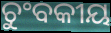
ଚୁଂବକୀୟ